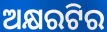
ଅକ୍ଷରଟିର